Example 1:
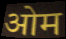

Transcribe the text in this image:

ओम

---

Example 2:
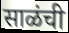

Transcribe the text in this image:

साळंची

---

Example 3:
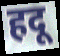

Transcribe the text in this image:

हदू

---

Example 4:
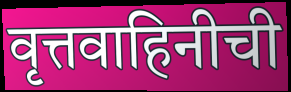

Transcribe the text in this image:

वृत्तवाहिनीची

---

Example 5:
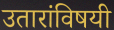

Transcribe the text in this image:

उतारांविषयी